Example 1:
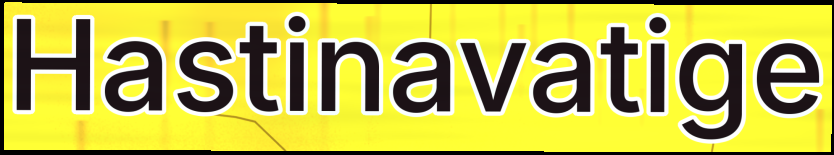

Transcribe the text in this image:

Hastinavatige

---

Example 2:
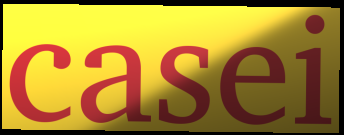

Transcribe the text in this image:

casei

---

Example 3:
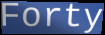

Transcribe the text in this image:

Forty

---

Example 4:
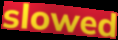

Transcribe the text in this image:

slowed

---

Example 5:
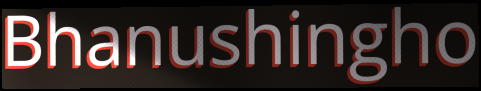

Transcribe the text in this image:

Bhanushingho